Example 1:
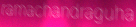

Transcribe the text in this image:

ramachandraguha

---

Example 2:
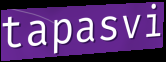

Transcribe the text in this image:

tapasvi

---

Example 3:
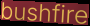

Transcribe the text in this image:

bushfire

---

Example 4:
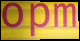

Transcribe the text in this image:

opm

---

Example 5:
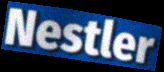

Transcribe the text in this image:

Nestler